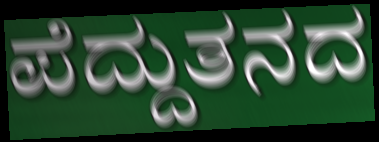
ಪೆದ್ದುತನದ